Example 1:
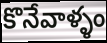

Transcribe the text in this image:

కొనేవాళ్ళం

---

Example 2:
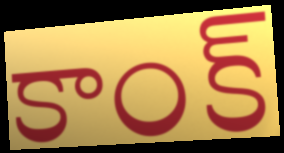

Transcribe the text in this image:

కాంక్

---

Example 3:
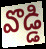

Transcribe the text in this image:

వొడ్డి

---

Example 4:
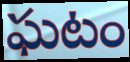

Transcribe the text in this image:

ఘటం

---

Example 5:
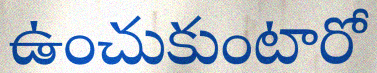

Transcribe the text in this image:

ఉంచుకుంటారో